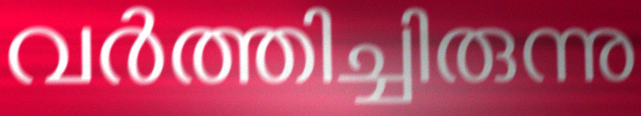
വർത്തിച്ചിരുന്നു